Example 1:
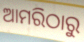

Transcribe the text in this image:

ଆମରିଠାରୁ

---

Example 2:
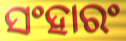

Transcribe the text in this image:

ସଂହାରଂ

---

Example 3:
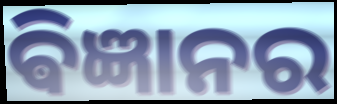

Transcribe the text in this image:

ଵିଜ୍ଞାନର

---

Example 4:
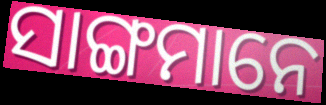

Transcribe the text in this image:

ସାଙ୍ଗମାନେ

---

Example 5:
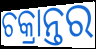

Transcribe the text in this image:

ଚକ୍ରାନ୍ତର